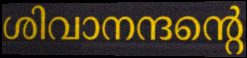
ശിവാനന്ദന്റെ